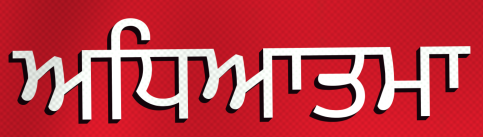
ਅਧਿਆਤਮਾ